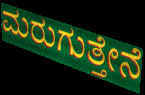
ಮರುಗುತ್ತೇನೆ